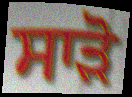
ਸਾੜੋ